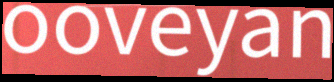
ooveyan